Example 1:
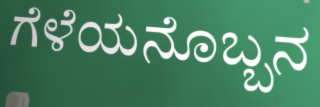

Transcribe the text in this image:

ಗೆಳೆಯನೊಬ್ಬನ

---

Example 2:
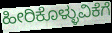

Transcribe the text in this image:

ಹೀರಿಕೊಳ್ಳುವಿಕೆಗೆ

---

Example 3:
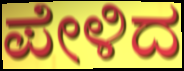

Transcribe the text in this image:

ಪೇಳಿದ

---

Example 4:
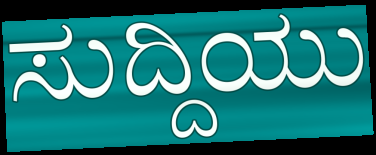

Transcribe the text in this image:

ಸುದ್ದಿಯು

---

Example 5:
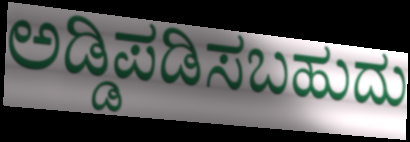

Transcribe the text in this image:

ಅಡ್ಡಿಪಡಿಸಬಹುದು